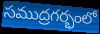
సముద్రగర్భంలో